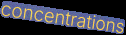
concentrations